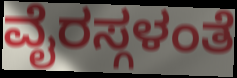
ವೈರಸ್ಗಳಂತೆ